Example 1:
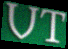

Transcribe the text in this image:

UT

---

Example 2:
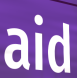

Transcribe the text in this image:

aid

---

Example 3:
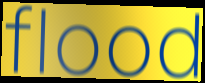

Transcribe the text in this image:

flood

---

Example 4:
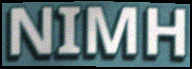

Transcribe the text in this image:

NIMH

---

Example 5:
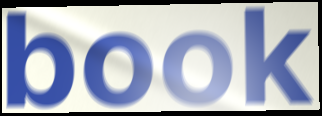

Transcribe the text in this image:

book